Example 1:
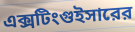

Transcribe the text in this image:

এক্সটিংগুইসারের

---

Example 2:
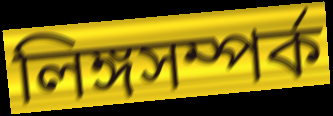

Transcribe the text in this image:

লিঙ্গসম্পর্ক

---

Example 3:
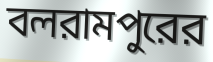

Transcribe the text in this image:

বলরামপুরের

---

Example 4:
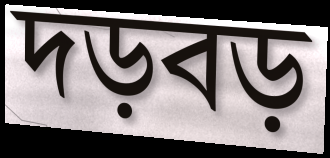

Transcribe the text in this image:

দড়বড়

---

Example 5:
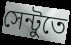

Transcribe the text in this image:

সেন্টুতে